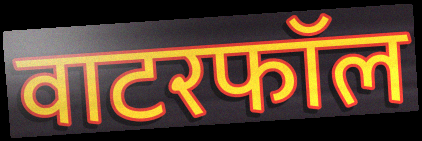
वाटरफॉल